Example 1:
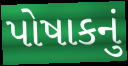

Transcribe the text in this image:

પોષાકનું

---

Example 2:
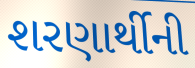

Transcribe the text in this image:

શરણાર્થીની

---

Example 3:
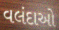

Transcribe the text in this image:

વલંદાઓ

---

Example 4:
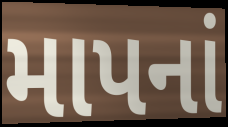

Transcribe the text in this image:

માપનાં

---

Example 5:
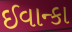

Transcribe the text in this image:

ઈવાન્કા